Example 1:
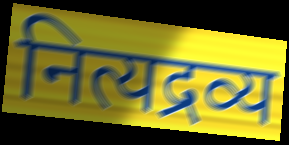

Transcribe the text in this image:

नित्यद्रव्य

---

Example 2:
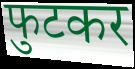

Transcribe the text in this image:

फुटकर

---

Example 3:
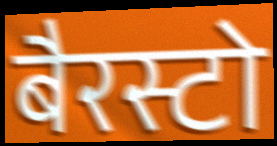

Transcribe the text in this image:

बैरस्टो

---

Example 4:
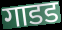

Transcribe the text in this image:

गाडड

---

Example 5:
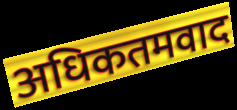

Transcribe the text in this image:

अधिकतमवाद